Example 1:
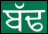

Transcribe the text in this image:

ਬੱਢ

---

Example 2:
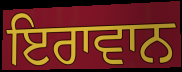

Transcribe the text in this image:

ਇਰਾਵਾਨ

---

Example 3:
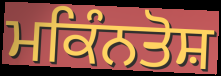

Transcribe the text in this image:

ਮਕਿੰਨਤੋਸ਼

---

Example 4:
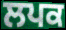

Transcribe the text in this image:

ਲਪਕ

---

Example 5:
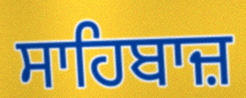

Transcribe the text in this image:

ਸਾਹਿਬਾਜ਼